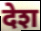
देश